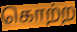
கொற்ற